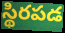
స్థిరపడ